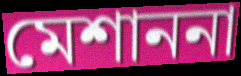
মেশাননা